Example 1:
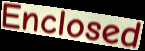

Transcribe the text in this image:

Enclosed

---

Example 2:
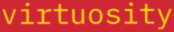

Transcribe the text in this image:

virtuosity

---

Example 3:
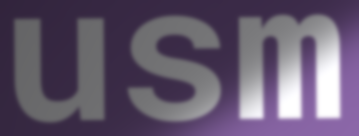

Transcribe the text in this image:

usm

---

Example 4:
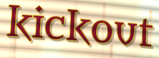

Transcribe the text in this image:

kickout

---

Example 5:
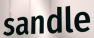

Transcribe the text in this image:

sandle